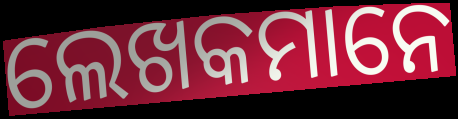
ଲେଖକମାନେ